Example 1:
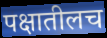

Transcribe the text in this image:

पक्षातीलच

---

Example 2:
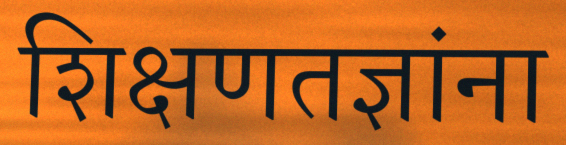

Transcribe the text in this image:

शिक्षणतज्ञांना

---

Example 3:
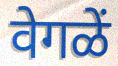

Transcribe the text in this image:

वेगळें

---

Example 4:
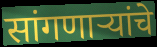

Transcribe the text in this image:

सांगणार्‍यांचे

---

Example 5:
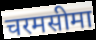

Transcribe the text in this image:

चरमसीमा